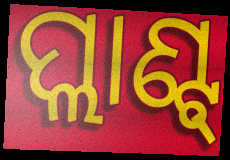
ପ୍ଲାଣ୍ଟ୍